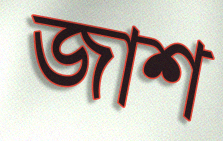
জাশ